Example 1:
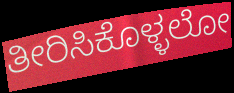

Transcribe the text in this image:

ತೀರಿಸಿಕೊಳ್ಳಲೋ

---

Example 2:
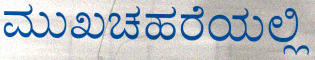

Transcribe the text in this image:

ಮುಖಚಹರೆಯಲ್ಲಿ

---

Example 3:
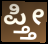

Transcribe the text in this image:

ಪ್ತ್ತೀ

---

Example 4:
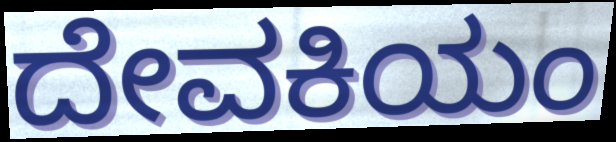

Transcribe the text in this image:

ದೇವಕಿಯಂ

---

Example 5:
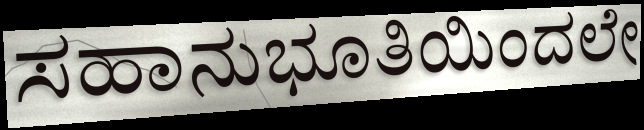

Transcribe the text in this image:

ಸಹಾನುಭೂತಿಯಿಂದಲೇ